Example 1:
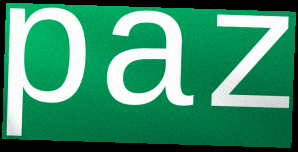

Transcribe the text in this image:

paz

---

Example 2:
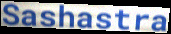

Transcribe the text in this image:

Sashastra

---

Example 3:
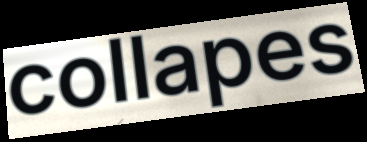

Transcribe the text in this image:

collapes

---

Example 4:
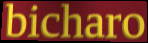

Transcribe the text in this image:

bicharo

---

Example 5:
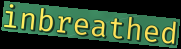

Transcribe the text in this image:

inbreathed